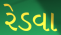
રેડવા